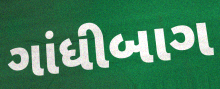
ગાંધીબાગ